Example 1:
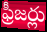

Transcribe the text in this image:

ఫ్రీజర్లు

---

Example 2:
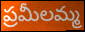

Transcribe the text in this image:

ప్రమీలమ్మ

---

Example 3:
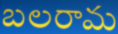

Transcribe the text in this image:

బలరామ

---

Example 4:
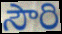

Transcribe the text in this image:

సౌరి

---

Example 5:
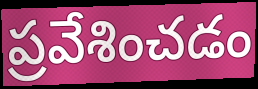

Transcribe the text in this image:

ప్రవేశించడం